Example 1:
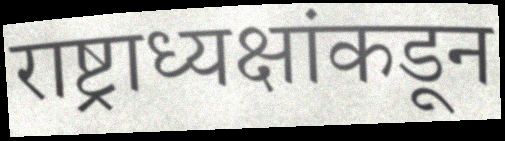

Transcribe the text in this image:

राष्ट्राध्यक्षांकडून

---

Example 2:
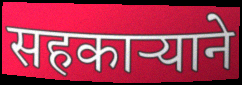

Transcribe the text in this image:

सहकाऱ्याने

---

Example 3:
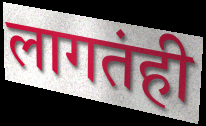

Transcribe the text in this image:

लागतंही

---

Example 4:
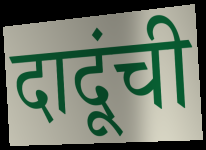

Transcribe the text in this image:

दादूंची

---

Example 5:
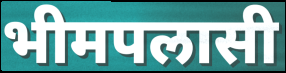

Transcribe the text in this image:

भीमपलासी